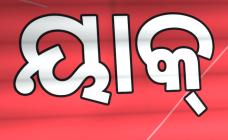
ୟାକ୍